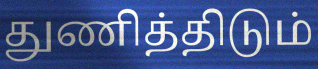
துணித்திடும்